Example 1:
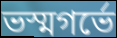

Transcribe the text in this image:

ভস্মগর্ভে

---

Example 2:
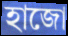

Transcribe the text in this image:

হাজো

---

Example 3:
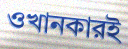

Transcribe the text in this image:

ওখানকারই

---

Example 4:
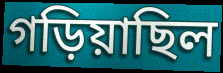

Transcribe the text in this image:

গড়িয়াছিল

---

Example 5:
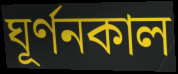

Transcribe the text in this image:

ঘূর্ণনকাল